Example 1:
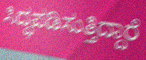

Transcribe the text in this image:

ಸಿದ್ಧಪಡಿಸುತ್ತಿದ್ದಾರೆ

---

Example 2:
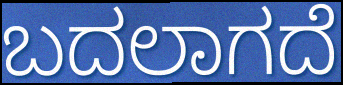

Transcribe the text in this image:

ಬದಲಾಗದೆ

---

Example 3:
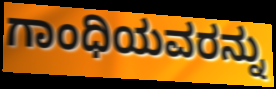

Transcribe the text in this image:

ಗಾಂಧಿಯವರನ್ನು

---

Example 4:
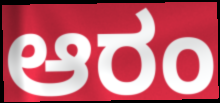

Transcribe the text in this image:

ಆರಂ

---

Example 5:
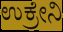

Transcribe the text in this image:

ಉಕ್ರೇನಿ